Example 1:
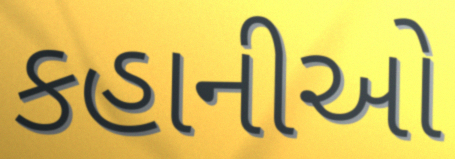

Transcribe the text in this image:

કહાનીઓ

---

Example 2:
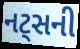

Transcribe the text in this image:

નટ્સની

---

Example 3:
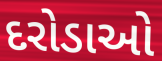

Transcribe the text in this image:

દરોડાઓ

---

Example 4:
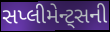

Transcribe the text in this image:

સપ્લીમેન્ટ્સની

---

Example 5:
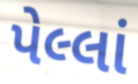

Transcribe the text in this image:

પેલ્લાં